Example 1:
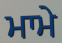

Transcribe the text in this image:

ਮਾਮੇ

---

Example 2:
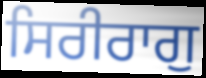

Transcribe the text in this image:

ਸਿਰੀਰਾਗੁ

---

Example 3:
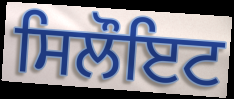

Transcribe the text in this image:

ਸਿਲੌਇਟ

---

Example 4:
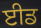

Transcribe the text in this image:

ਈਡ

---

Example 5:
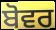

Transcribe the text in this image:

ਬੋਵਰ